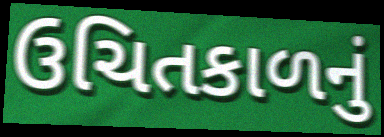
ઉચિતકાળનું